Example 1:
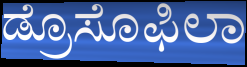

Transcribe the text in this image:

ಡ್ರೊಸೊಫಿಲಾ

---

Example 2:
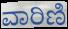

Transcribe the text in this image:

ವಾರಿಣಿ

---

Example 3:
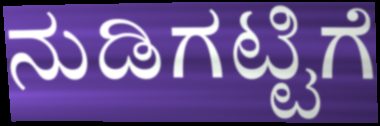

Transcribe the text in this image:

ನುಡಿಗಟ್ಟಿಗೆ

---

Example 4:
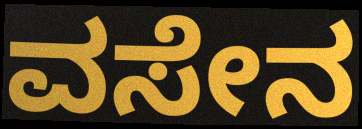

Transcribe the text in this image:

ವಸೇನ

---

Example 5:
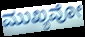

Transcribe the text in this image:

ಮುಖ್ಯವೋ